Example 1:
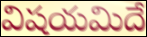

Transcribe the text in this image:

విషయమిదే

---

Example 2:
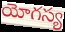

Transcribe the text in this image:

యోగస్య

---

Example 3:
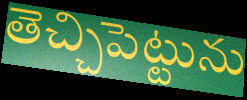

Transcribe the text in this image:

తెచ్చిపెట్టును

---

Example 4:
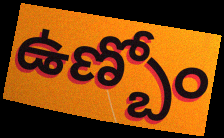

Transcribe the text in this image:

ఉణ్బోం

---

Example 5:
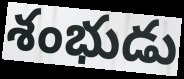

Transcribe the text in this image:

శంభుడు